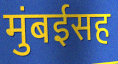
मुंबईसह